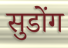
सुडोंग